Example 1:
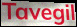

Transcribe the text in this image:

Tavegil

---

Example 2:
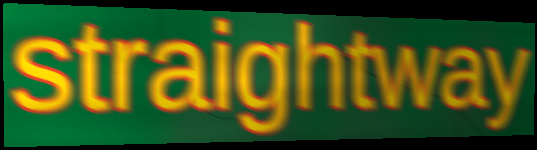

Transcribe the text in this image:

straightway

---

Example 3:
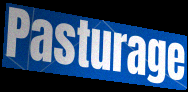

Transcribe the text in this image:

Pasturage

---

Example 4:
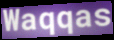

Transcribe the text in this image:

Waqqas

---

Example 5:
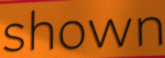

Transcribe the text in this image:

shown